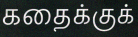
கதைக்குக்